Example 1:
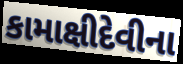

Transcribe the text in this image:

કામાક્ષીદેવીના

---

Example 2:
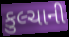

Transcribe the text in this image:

કુલ્ચાની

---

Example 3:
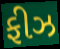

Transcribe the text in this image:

ફીઝ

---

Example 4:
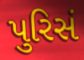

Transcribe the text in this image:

પુરિસં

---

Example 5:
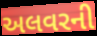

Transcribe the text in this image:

અલવરની